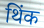
थिंक